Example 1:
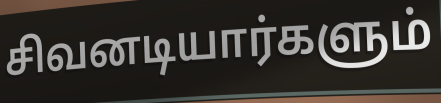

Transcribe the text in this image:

சிவனடியார்களும்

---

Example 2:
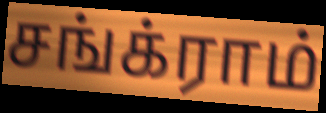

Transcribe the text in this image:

சங்க்ராம்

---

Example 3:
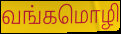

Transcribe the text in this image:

வங்கமொழி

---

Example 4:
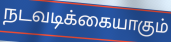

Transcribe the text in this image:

நடவடிக்கையாகும்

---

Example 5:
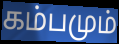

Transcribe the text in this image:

கம்பமும்